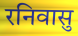
रनिवासु